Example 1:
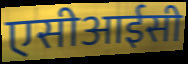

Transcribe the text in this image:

एसीआईसी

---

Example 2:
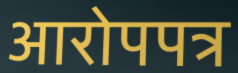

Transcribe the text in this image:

आरोपपत्र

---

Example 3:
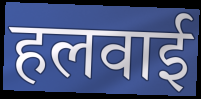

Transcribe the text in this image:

हलवाई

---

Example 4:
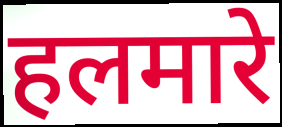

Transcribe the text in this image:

हलमारे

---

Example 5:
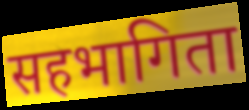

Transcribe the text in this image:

सहभागिता